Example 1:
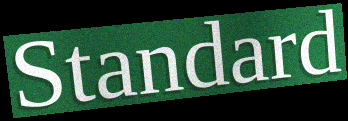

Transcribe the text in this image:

Standard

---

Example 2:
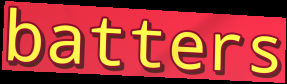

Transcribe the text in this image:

batters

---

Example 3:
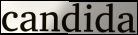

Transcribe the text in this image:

candida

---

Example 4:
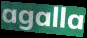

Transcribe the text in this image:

agalla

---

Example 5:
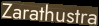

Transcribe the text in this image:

Zarathustra